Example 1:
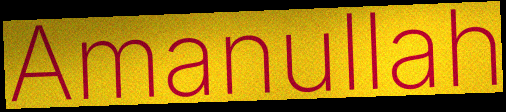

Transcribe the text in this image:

Amanullah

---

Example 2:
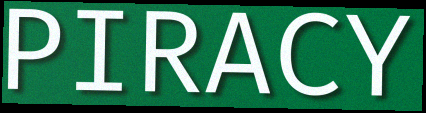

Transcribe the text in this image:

PIRACY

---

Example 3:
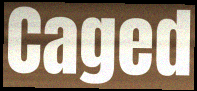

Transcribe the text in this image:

Caged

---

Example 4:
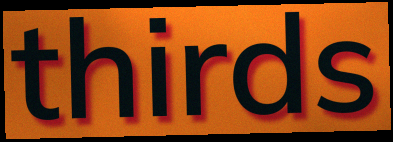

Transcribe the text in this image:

thirds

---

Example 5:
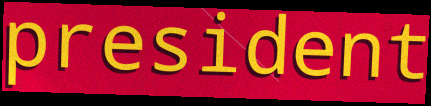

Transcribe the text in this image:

president